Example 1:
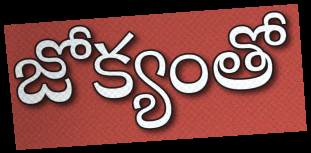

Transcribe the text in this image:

జోక్యంతో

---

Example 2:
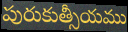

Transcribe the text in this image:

పురుకుత్సీయము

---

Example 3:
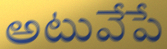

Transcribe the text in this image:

అటువేపే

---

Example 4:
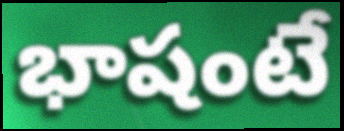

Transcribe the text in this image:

భాషంటే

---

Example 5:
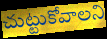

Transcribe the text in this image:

చుట్టుకోవాలని